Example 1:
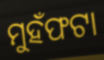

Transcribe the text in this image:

ମୁହଁଫଟା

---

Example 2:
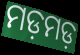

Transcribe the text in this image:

ମଡ଼ମଡ଼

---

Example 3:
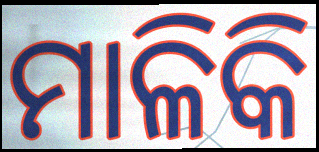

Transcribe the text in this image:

ମାଳିକି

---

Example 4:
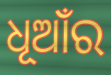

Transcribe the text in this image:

ଧୂଆଁର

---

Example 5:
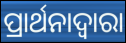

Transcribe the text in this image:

ପ୍ରାର୍ଥନାଦ୍ଵାରା